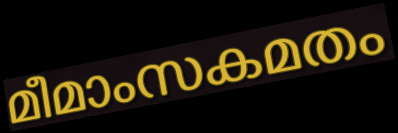
മീമാംസകമതം